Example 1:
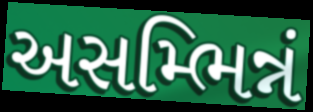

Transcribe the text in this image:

અસમ્ભિન્નં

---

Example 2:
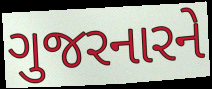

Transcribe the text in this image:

ગુજરનારને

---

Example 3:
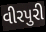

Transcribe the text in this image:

વીરપુરી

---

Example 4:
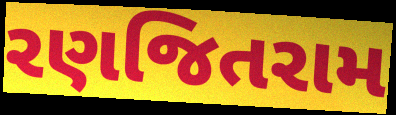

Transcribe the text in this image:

રણજિતરામ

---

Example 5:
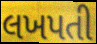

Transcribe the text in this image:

લખપતી